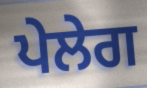
ਪੇਲੇਗ